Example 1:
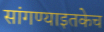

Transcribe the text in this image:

सांगण्याइतकेच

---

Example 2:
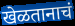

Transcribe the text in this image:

खेळतानाचं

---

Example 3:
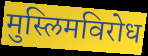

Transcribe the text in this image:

मुस्लिमविरोध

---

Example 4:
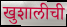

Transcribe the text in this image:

खुशालीची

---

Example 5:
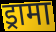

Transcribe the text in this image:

ड्रामा